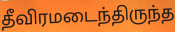
தீவிரமடைந்திருந்த